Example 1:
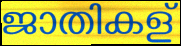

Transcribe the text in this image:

ജാതികള്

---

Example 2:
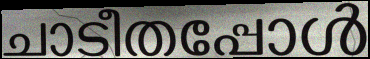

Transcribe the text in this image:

ചാടീതപ്പോൾ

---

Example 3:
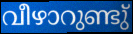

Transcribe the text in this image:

വീഴാറുണ്ടു്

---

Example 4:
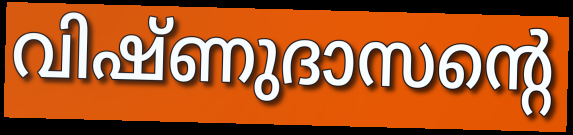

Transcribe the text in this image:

വിഷ്ണുദാസന്റെ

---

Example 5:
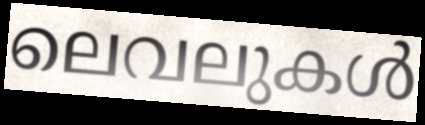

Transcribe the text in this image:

ലെവലുകൾ